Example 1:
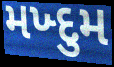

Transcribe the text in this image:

મખ્દુમ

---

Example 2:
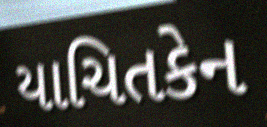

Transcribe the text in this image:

યાચિતકેન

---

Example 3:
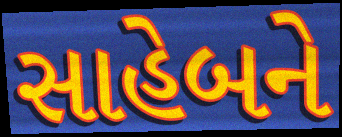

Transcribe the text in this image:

સાહેબને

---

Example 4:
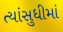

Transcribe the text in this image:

ત્યાંસુધીમાં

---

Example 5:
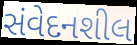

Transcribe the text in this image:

સંવેદનશીલ